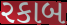
રકાબ